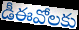
డీఈవోలకు